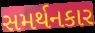
સમર્થનકાર